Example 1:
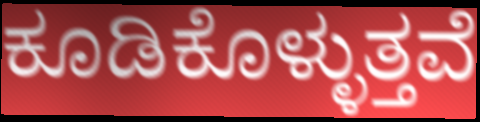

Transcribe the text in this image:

ಕೂಡಿಕೊಳ್ಳುತ್ತವೆ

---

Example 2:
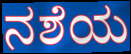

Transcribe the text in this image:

ನಶೆಯ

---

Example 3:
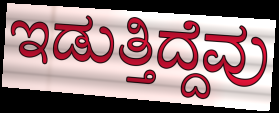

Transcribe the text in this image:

ಇಡುತ್ತಿದ್ದೆವು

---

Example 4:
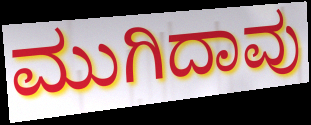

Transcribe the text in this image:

ಮುಗಿದಾವು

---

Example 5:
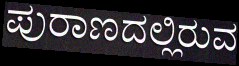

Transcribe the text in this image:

ಪುರಾಣದಲ್ಲಿರುವ